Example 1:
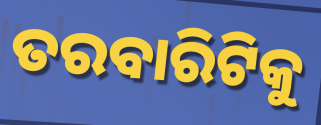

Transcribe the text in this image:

ତରବାରିଟିକୁ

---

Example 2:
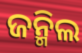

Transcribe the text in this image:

ଜନ୍ମିଲ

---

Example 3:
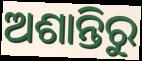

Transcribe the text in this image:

ଅଶାନ୍ତିରୁ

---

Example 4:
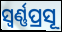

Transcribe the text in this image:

ସ୍ବର୍ଣ୍ଣପ୍ରସୂ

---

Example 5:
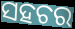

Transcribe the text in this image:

ସହଚର